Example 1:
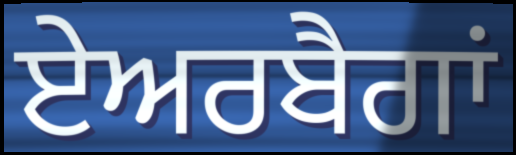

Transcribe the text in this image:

ਏਅਰਬੈਗਾਂ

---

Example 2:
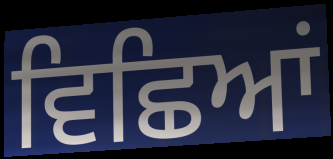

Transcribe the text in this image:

ਵਿਛਿਆਂ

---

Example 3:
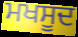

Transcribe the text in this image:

ਮਖਸੂਦ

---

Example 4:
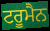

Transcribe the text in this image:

ਟਰੂਮੈਨ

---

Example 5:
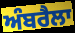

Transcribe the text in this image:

ਅੰਬਰੈਲਾ